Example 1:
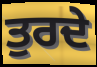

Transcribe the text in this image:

ਤੁਰਦੇ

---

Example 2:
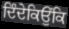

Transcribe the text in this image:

ਦਿੰਦੇਕਿਉਂਕਿ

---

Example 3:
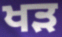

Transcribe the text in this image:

ਖੜ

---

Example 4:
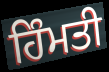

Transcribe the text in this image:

ਹਿੰਮਤੀ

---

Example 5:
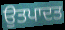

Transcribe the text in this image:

ਉਤਪਾਦਤ